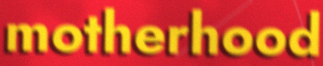
motherhood